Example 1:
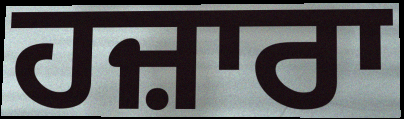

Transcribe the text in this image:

ਹਜ਼ਾਰਾ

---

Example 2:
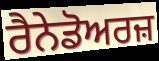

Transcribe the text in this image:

ਰੈਨੇਡੋਅਰਜ਼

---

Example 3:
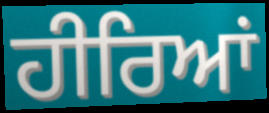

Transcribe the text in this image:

ਹੀਰਿਆਂ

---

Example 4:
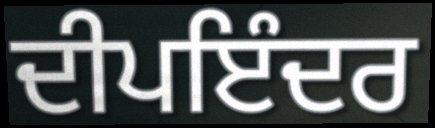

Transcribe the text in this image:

ਦੀਪਇੰਦਰ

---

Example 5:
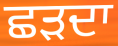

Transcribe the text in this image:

ਛੜਦਾ